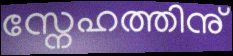
സ്നേഹത്തിനു്